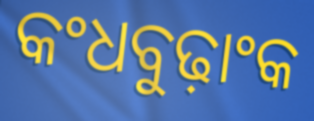
କଂଧବୁଢ଼ାଂକ